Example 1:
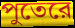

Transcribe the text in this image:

পুতেরে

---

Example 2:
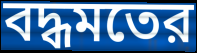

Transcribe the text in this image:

বদ্ধমতের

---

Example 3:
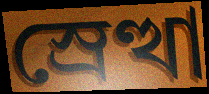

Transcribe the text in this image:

স্রেত্থা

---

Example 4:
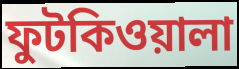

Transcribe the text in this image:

ফুটকিওয়ালা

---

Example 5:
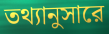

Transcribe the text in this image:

তথ্যানুসারে